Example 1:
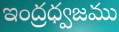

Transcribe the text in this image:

ఇంద్రధ్వజము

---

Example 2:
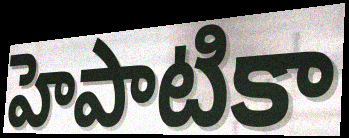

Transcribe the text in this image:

హెపాటికా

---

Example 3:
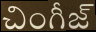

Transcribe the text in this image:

చింగీజ్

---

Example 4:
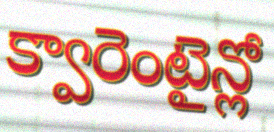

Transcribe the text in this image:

క్వారెంటైన్లో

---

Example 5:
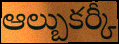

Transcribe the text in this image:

ఆల్బుకర్కీ